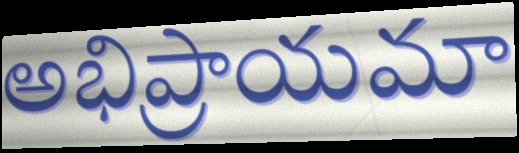
అభిప్రాయమా